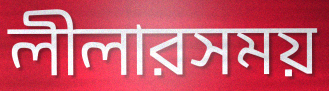
লীলারসময়